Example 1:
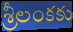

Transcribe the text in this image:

శ్రీలంకకు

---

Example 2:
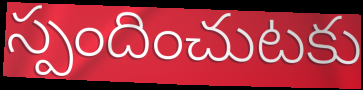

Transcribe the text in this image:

స్పందించుటకు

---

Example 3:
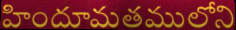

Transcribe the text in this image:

హిందూమతములోని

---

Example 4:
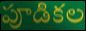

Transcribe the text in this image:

పూడికల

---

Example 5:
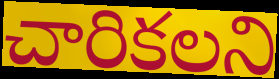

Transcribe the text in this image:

చారికలని